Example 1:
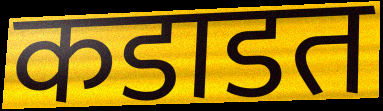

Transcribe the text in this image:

कडाडत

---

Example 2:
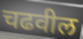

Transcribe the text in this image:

चढवील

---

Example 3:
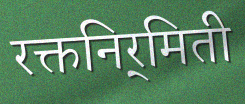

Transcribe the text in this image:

रक्तनिर्मिती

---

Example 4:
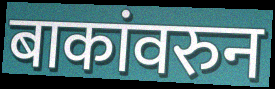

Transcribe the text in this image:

बाकांवरुन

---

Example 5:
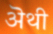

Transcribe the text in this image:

ऄथी